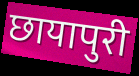
छायापुरी